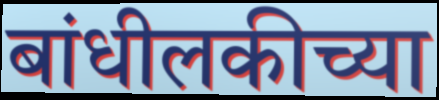
बांधीलकीच्या